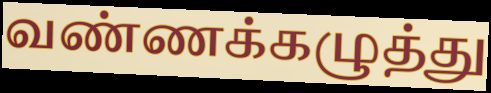
வண்ணக்கழுத்து